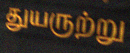
துயருற்று